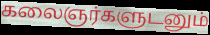
கலைஞர்களுடனும்